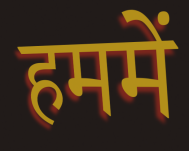
हममें